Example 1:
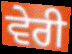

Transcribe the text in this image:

ਵੇਰੀ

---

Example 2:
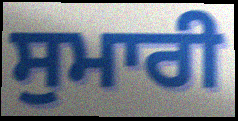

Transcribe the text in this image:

ਸੁਮਾਰੀ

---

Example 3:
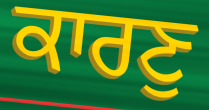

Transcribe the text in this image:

ਕਾਰਣੁ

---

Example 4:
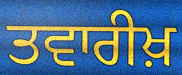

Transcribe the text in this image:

ਤਵਾਰੀਖ਼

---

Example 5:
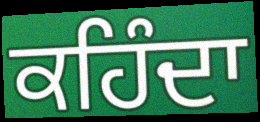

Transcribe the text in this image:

ਕਹਿੰਦਾ